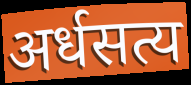
अर्धसत्य